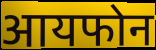
आयफोन